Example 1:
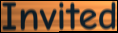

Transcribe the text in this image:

Invited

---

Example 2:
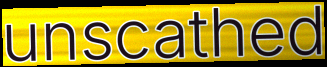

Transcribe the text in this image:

unscathed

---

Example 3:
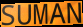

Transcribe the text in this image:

SUMAN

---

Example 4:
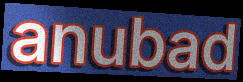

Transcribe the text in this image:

anubad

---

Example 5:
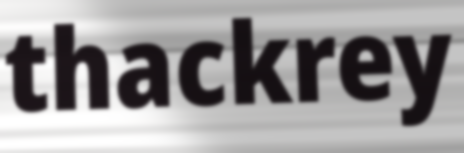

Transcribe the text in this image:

thackrey